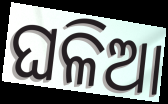
ଘଳିଆ